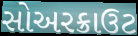
સોઅરક્રાઉટ